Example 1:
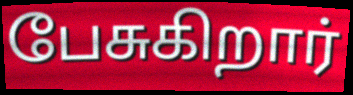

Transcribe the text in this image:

பேசுகிறார்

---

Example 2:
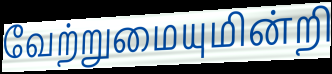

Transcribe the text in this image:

வேற்றுமையுமின்றி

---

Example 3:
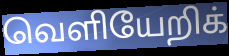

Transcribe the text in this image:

வெளியேறிக்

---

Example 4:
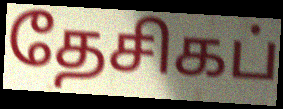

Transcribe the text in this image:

தேசிகப்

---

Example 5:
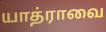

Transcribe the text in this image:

யாத்ராவை